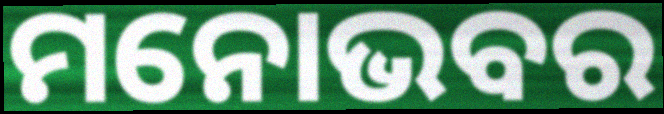
ମନୋଭବର